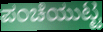
ಪಂಚೆಯುಟ್ಟ